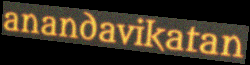
anandavikatan